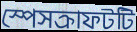
স্পেসক্রাফটটি